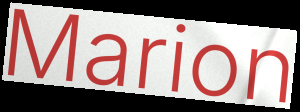
Marion